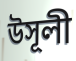
উসূলী